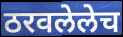
ठरवलेलेच